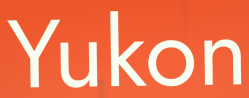
Yukon